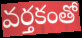
వర్తకంతో